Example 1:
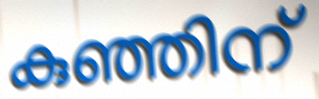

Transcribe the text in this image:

കുഞ്ഞിന്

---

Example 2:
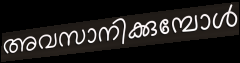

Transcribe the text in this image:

അവസാനിക്കുമ്പോൾ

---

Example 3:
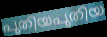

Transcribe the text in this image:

പുതിയപുതിയ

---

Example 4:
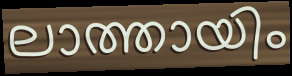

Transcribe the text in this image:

ലാത്തായിം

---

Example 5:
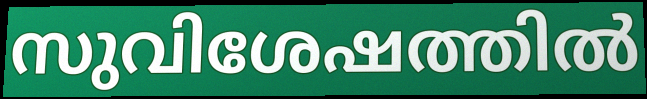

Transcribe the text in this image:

സുവിശേഷത്തിൽ